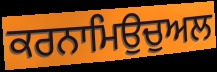
ਕਰਨਾਮਿਉਚੁਅਲ